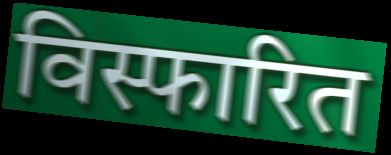
विस्फारित